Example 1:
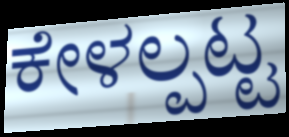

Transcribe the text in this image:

ಕೇಳಲ್ಪಟ್ಟ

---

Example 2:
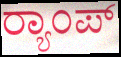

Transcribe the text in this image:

ರ‍್ಯಾಂಪ್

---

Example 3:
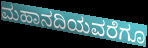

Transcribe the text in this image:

ಮಹಾನದಿಯವರೆಗೂ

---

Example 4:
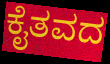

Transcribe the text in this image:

ಕೈತವದ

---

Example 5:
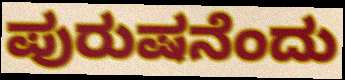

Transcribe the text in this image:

ಪುರುಷನೆಂದು